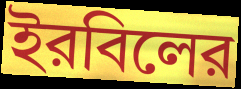
ইরবিলের